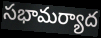
సభామర్యాద